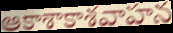
ఆకాశాకాశవాహన